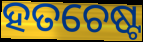
ହତଚେଷ୍ଟ